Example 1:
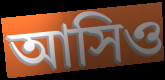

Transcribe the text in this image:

আসিও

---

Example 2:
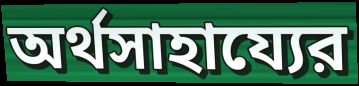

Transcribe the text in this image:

অর্থসাহায্যের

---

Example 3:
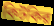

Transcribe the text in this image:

কিটকির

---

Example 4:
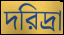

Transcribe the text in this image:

দরিদ্রা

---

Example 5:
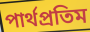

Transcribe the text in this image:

পার্থপ্রতিম